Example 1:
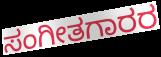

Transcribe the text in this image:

ಸಂಗೀತಗಾರರ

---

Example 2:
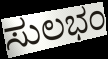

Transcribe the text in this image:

ಸುಲಭಂ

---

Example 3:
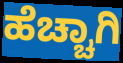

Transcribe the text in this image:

ಹೆಚ್ಚಾಗಿ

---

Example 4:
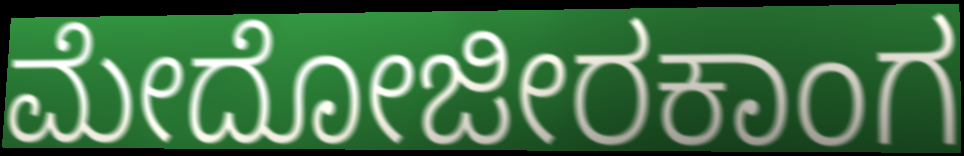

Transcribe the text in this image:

ಮೇದೋಜೀರಕಾಂಗ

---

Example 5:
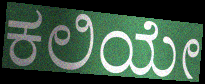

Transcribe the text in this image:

ಕಲಿಯೇ